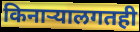
किनाऱ्यालगतही